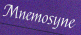
Mnemosyne